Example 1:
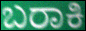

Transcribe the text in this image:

ಬರಾಕಿ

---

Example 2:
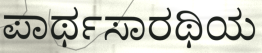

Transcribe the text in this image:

ಪಾರ್ಥಸಾರಥಿಯ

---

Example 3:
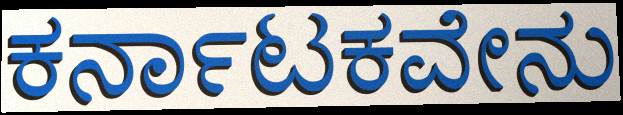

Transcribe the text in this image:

ಕರ್ನಾಟಕವೇನು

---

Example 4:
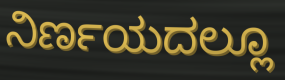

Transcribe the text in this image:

ನಿರ್ಣಯದಲ್ಲೂ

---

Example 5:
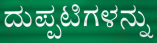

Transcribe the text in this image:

ದುಪ್ಪಟಿಗಳನ್ನು